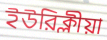
ইউরিক্লীয়া